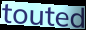
touted